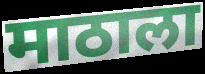
माठाला